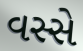
વસ્સે